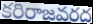
కరిరాజవరద